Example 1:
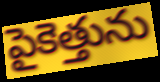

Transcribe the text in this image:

పైకెత్తును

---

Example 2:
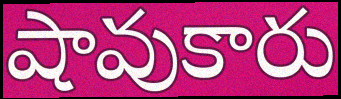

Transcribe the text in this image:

షావుకారు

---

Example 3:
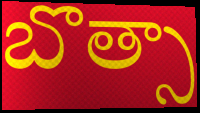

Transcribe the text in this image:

బొత్సా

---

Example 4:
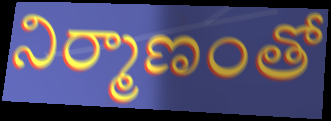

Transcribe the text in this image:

నిర్మాణంతో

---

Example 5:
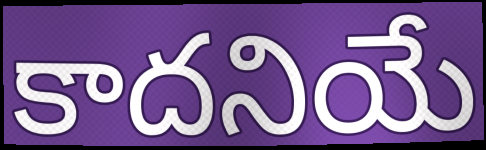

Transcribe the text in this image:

కాదనియే